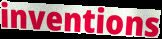
inventions